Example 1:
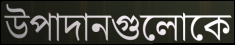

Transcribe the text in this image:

উপাদানগুলোকে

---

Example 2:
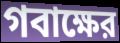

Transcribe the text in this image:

গবাক্ষের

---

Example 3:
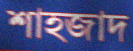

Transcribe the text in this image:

শাহজাদ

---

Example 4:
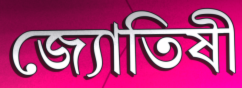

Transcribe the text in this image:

জ্যোতিষী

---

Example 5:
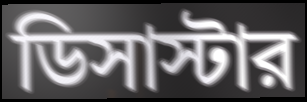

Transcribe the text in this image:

ডিসাস্টার